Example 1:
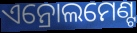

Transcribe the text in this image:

ଏନ୍ରୋଲମେଣ୍ଟ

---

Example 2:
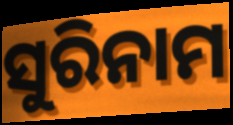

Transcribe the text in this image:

ସୁରିନାମ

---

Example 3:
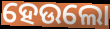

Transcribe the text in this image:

ହେଉଲୋ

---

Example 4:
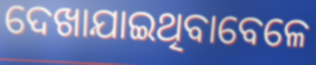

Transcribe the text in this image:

ଦେଖାଯାଇଥିବାବେଳେ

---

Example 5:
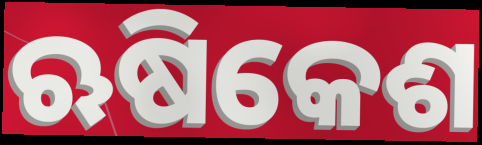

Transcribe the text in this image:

ଋଷିକେଶ